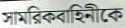
সামরিকবাহিনীকে